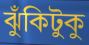
ঝুঁকিটুকু